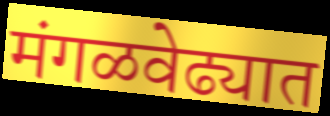
मंगळवेढ्यात